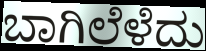
ಬಾಗಿಲೆಳೆದು